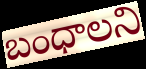
బంధాలని